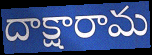
దాక్షారామ